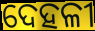
ଦେହଳୀ